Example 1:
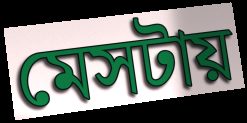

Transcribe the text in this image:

মেসটায়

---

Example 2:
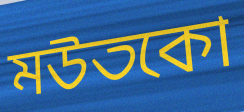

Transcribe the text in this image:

মউতকো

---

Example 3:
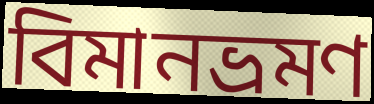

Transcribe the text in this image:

বিমানভ্রমণ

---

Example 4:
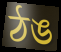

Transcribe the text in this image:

ঠঙ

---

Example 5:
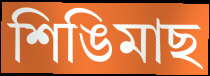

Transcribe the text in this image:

শিঙিমাছ